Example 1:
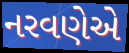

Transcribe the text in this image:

નરવણેએ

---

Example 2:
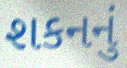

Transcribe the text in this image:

શકનનું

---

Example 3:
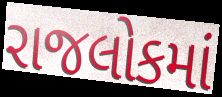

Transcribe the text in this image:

રાજલોકમાં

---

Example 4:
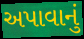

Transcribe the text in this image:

અપાવાનું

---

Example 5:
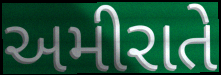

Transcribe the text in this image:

અમીરાતે